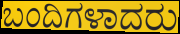
ಬಂದಿಗಳಾದರು